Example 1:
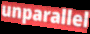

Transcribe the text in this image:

unparallel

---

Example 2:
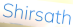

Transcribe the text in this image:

Shirsath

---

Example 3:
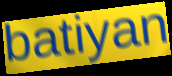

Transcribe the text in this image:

batiyan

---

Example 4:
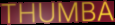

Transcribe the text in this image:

THUMBA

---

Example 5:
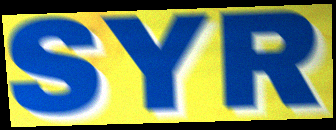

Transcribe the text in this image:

SYR